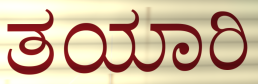
ತಯಾರಿ